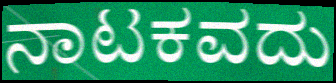
ನಾಟಕವದು